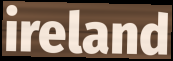
ireland